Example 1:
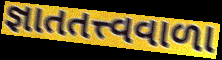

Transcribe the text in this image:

જ્ઞાતતત્ત્વવાળા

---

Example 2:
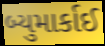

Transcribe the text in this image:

બ્યુમાર્કાઈ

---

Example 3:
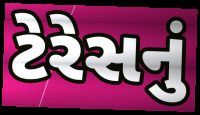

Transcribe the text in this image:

ટેરેસનું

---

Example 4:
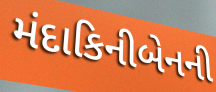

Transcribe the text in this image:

મંદાકિનીબેનની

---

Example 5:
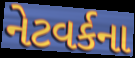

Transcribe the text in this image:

નેટવર્કના